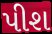
પીશ